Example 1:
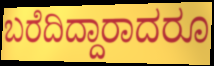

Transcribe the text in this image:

ಬರೆದಿದ್ದಾರಾದರೂ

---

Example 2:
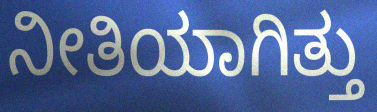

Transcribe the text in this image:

ನೀತಿಯಾಗಿತ್ತು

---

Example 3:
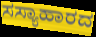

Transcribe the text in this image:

ಸಸ್ಯಾಹಾರದ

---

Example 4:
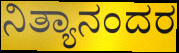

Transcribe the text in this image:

ನಿತ್ಯಾನಂದರ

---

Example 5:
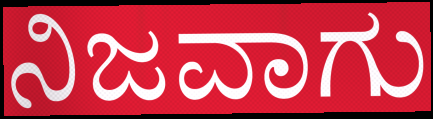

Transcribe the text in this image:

ನಿಜವಾಗು